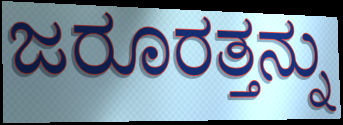
ಜರೂರತ್ತನ್ನು